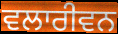
ਵਲਾਰੀਵਨ